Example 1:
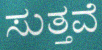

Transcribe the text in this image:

ಸುತ್ತವೆ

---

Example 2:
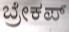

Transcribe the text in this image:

ಬ್ರೇಕಪ್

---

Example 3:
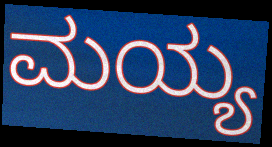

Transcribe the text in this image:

ಮಯ್ಯ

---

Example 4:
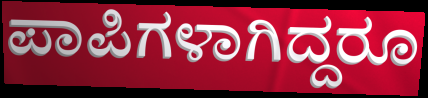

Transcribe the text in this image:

ಪಾಪಿಗಳಾಗಿದ್ದರೂ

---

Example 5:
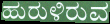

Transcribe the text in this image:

ಹುರುಳಿರುವ